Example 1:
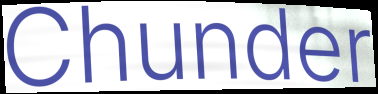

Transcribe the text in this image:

Chunder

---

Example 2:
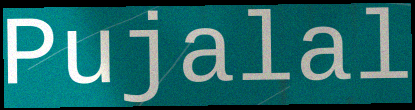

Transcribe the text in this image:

Pujalal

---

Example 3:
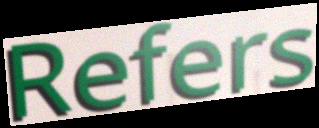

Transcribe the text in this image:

Refers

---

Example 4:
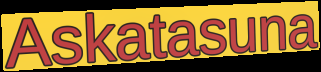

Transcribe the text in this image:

Askatasuna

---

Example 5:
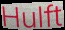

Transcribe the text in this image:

Hulft